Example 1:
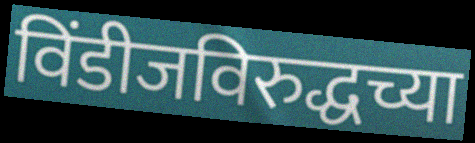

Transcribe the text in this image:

विंडीजविरुद्धच्या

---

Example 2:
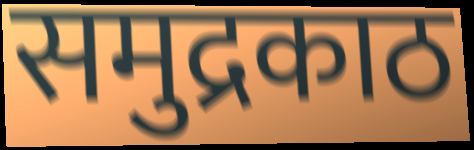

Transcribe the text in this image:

समुद्रकाठ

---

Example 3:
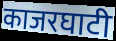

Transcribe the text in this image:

काजरघाटी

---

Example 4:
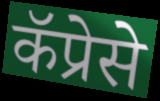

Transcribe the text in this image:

कॅप्रेसे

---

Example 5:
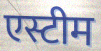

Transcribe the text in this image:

एस्टीम